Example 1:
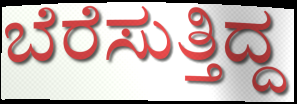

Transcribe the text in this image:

ಬೆರೆಸುತ್ತಿದ್ದ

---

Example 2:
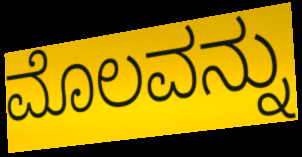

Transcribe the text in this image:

ಮೊಲವನ್ನು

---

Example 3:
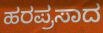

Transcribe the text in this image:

ಹರಪ್ರಸಾದ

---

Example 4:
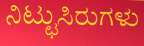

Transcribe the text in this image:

ನಿಟ್ಟುಸಿರುಗಳು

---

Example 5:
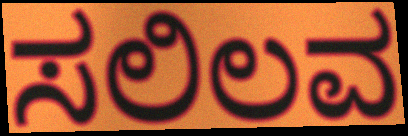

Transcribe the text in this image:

ಸಲಿಲವ